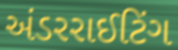
અંડરરાઈટિંગ